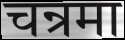
चन्रमा